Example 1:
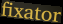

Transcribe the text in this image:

fixator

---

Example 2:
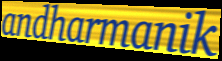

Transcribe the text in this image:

andharmanik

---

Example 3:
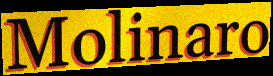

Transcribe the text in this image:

Molinaro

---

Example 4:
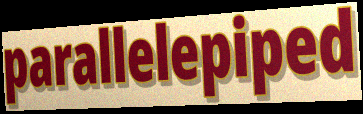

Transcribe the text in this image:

parallelepiped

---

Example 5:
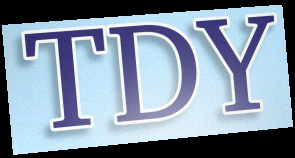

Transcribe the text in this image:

TDY